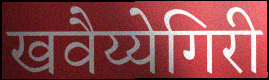
खवैय्येगिरी